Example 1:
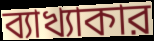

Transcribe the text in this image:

ব্যাখ্যাকার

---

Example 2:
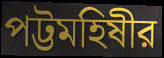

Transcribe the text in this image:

পট্টমহিষীর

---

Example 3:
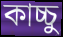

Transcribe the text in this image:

কাচ্চু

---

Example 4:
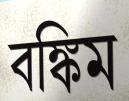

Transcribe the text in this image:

বঙ্কিম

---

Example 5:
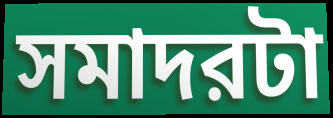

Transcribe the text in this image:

সমাদরটা